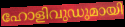
ഹോളിവുഡുമായി